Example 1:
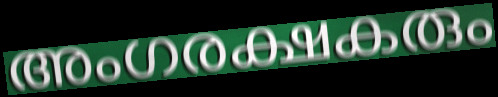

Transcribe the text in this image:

അംഗരക്ഷകരും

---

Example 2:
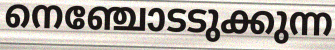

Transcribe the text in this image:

നെഞ്ചോടടുക്കുന്ന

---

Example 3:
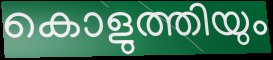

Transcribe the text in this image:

കൊളുത്തിയും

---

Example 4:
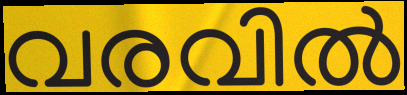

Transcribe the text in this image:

വരവിൽ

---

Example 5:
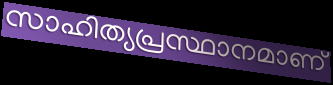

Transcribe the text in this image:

സാഹിത്യപ്രസ്ഥാനമാണ്